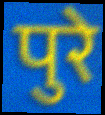
पुरे